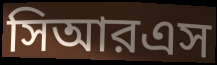
সিআরএস